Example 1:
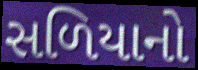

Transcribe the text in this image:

સળિયાનો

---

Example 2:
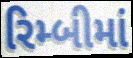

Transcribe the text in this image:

રિમ્બીમાં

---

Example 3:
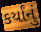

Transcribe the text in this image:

કર્યાંનું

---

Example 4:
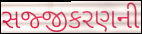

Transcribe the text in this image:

સજ્જીકરણની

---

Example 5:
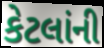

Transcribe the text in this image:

કેટલાંની